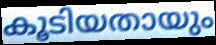
കൂടിയതായും